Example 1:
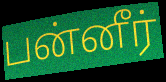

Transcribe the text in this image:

பன்னீர்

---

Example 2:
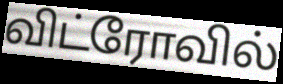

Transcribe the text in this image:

விட்ரோவில்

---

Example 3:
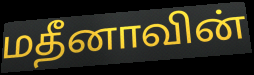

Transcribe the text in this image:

மதீனாவின்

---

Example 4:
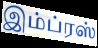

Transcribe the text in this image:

இம்ப்ரஸ்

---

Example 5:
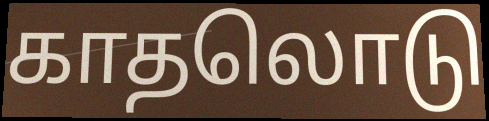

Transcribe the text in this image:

காதலொடு